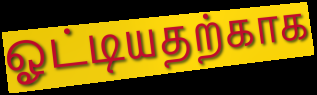
ஓட்டியதற்காக